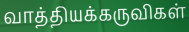
வாத்தியக்கருவிகள்